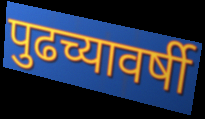
पुढच्यावर्षी